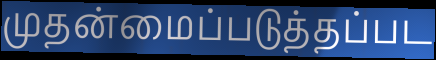
முதன்மைப்படுத்தப்பட